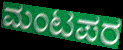
ಮಂಟಪರ